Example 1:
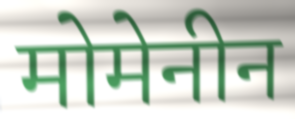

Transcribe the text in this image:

मोमेनीन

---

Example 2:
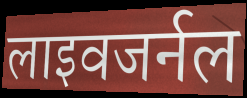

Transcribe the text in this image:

लाइवजर्नल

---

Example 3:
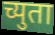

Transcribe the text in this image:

च्युता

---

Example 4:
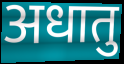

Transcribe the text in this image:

अधातु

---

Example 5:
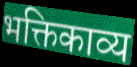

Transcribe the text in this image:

भक्तिकाव्य